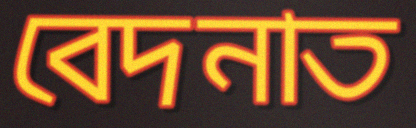
বেদনাত